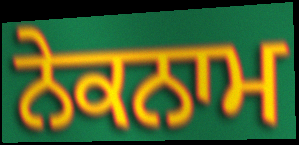
ਨੇਕਨਾਮ